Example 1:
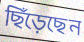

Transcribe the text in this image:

ছিঁড়েছেন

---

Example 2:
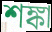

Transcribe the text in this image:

শঙ্কা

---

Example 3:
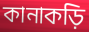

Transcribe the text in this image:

কানাকড়ি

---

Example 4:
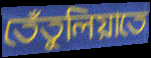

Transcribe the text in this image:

তেঁতুলিয়াতে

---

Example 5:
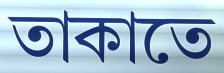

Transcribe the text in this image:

তাকাতে